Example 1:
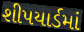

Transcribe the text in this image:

શીપયાર્ડમાં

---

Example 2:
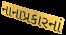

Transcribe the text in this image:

નાનાપ્રકારનાં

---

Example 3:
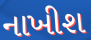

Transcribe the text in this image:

નાખીશ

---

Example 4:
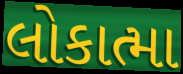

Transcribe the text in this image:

લોકાત્મા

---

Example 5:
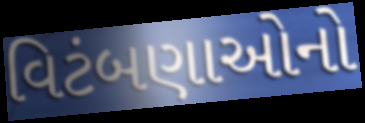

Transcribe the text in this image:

વિટંબણાઓનો